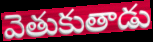
వెతుకుతాడు